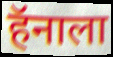
हॅनाला